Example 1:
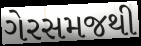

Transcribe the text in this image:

ગેરસમજથી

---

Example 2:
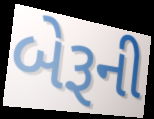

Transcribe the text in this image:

બેરૂની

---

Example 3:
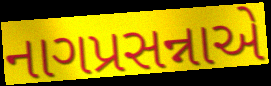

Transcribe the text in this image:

નાગપ્રસન્નાએ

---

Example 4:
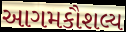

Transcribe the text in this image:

આગમકૌશલ્ય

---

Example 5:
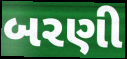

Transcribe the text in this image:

બરણી